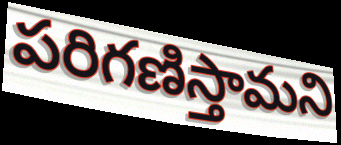
పరిగణిస్తామని